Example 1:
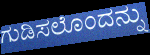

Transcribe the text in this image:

ಗುಡಿಸಲೊಂದನ್ನು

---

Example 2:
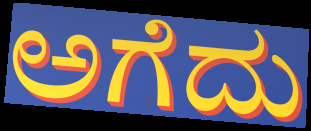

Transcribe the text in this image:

ಅಗೆದು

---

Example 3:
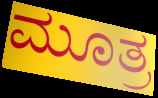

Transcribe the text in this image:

ಮೂತ್ರ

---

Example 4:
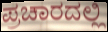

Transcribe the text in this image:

ಪ್ರಚಾರದಲ್ಲಿ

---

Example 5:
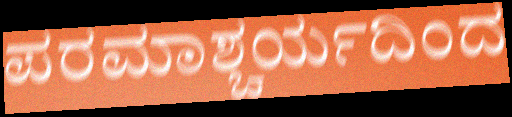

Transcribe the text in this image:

ಪರಮಾಶ್ಚರ್ಯದಿಂದ